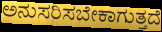
ಅನುಸರಿಸಬೇಕಾಗುತ್ತದೆ